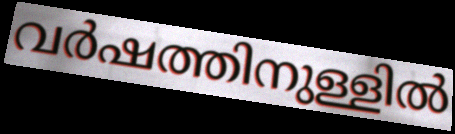
വർഷത്തിനുള്ളിൽ